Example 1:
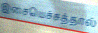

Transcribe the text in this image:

இசையெச்சத்தால்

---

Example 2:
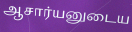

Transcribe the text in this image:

ஆசார்யனுடைய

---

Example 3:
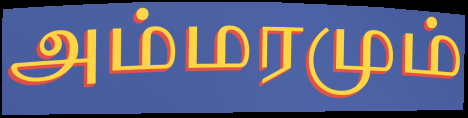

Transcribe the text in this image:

அம்மரமும்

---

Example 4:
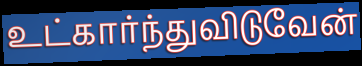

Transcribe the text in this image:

உட்கார்ந்துவிடுவேன்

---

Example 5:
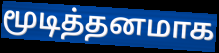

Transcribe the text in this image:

மூடித்தனமாக